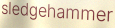
sledgehammer